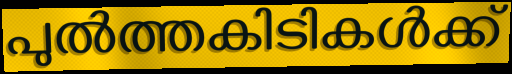
പുൽത്തകിടികൾക്ക്